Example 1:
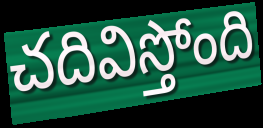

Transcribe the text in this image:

చదివిస్తోంది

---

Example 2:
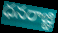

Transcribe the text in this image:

ధనరాజ్ఞి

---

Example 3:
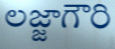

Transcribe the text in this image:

లజ్జాగౌరి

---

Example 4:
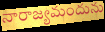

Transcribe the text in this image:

నారాజ్యమందును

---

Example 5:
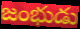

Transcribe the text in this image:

జంభుడు